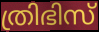
ത്രിഭിസ്